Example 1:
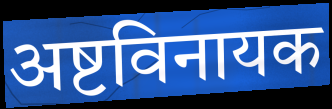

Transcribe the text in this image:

अष्टविनायक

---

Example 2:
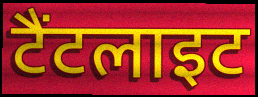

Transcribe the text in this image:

टैंटलाइट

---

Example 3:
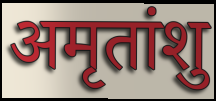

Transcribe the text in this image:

अमृतांशु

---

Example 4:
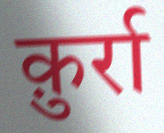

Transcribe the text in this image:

क़ुर्रा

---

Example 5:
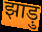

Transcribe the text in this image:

झाड़ु